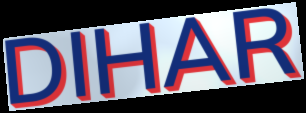
DIHAR